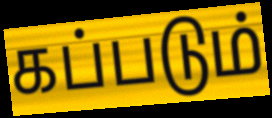
கப்படும்